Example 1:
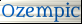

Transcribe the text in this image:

Ozempic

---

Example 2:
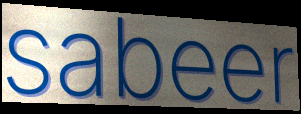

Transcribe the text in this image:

sabeer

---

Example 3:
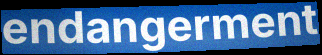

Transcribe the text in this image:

endangerment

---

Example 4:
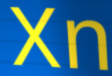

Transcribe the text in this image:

Xn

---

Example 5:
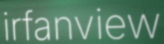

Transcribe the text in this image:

irfanview